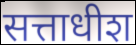
सत्ताधीश